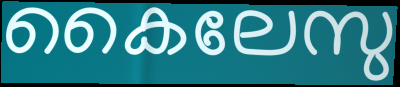
കൈലേസു